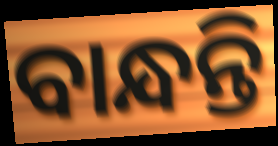
ବାନ୍ଧନ୍ତି